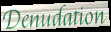
Denudation